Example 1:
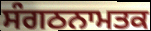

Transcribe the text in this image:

ਸੰਗਠਨਾਮਤਕ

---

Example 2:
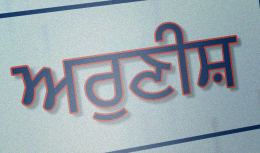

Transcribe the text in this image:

ਅਰੁਣੀਸ਼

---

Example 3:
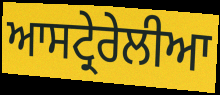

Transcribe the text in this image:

ਆਸਟ੍ਰੇਰੇਲੀਆ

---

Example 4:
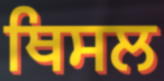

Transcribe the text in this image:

ਥਿਸਲ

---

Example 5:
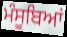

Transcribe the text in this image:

ਮੰਸੂਬਿਆਂ